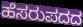
ಹೆಸರುಪದದ